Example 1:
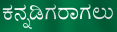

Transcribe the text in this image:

ಕನ್ನಡಿಗರಾಗಲು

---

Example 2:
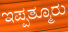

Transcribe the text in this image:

ಇಪ್ಪತ್ಮೂರು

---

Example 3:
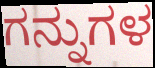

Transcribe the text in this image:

ಗನ್ನುಗಳ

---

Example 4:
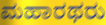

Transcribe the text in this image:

ಮಹಾರಥರು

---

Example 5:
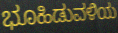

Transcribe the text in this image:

ಭೂಹಿಡುವಳಿಯ